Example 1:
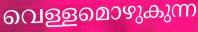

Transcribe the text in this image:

വെള്ളമൊഴുകുന്ന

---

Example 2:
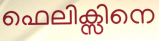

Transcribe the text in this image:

ഫെലിക്സിനെ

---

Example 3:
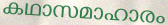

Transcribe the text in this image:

കഥാസമാഹാരം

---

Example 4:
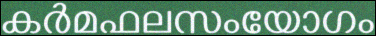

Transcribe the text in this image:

കർമഫലസംയോഗം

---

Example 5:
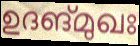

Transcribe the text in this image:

ഉദങ്മുഖഃ